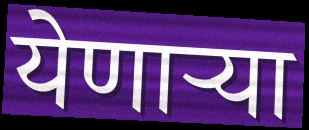
येणाऱ्या